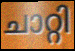
ചാറ്റി